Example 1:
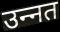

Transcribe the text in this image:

उन्‍नत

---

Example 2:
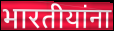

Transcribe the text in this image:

भारतीयांना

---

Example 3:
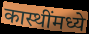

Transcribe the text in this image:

कास्थींमध्ये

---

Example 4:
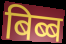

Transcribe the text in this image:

बिब्ब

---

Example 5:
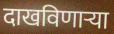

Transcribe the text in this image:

दाखविणाऱ्या